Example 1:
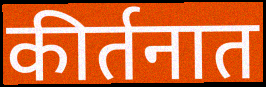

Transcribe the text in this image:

कीर्तनात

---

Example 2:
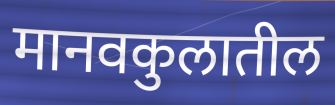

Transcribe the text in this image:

मानवकुलातील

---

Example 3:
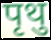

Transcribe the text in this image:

पृथु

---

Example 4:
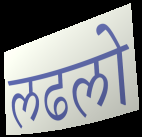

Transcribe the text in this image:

लढलो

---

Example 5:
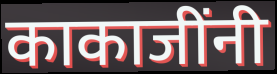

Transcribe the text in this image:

काकाजींनी